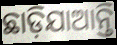
ଛାଡ଼ିଯାଆନ୍ତି